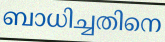
ബാധിച്ചതിനെ